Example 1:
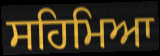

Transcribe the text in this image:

ਸਹਿਮਿਆ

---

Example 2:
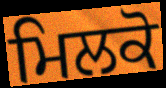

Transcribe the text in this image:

ਮਿਲਕੋ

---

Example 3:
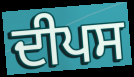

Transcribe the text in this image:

ਦੀਪਸ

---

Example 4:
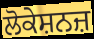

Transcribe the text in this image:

ਲੋਕੇਸ਼ਨਜ਼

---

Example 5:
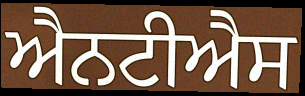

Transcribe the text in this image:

ਐਨਟੀਐਸ